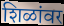
शिळांवर